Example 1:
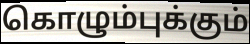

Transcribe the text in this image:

கொழும்புக்கும்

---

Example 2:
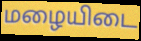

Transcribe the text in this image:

மழையிடை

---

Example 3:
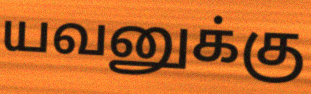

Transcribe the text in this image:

யவனுக்கு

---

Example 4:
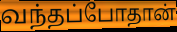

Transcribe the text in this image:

வந்தப்போதான்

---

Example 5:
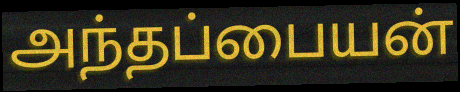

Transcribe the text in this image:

அந்தப்பையன்